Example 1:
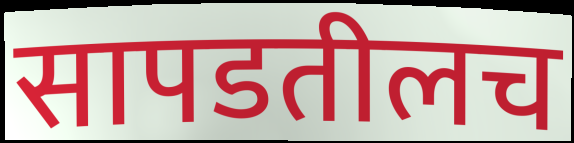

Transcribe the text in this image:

सापडतीलच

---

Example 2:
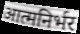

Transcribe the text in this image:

आत्मनिर्भर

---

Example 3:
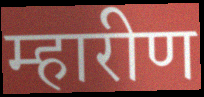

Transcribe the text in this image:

म्हारीण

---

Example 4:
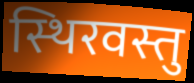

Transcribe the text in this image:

स्थिरवस्तु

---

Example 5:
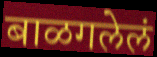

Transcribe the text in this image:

बाळगलेलं